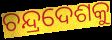
ଚନ୍ଦ୍ରଦେଶକୁ